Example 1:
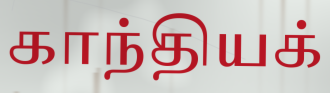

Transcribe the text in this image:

காந்தியக்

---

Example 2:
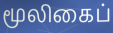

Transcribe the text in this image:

மூலிகைப்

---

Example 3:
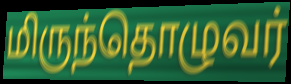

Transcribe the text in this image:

மிருந்தொழுவர்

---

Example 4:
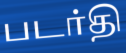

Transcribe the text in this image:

படர்தி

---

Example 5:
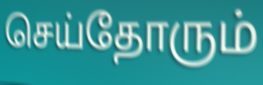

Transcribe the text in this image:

செய்தோரும்